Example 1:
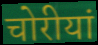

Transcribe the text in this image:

चोरीयां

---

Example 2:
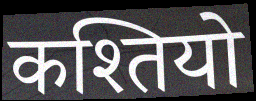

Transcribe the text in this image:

कश्तियो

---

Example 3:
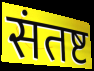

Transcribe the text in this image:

संतष्ट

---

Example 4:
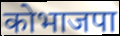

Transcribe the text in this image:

कोभाजपा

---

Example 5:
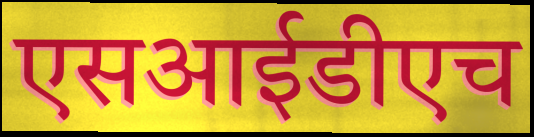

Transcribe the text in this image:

एसआईडीएच